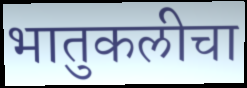
भातुकलीचा